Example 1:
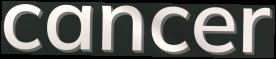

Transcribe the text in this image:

cancer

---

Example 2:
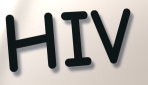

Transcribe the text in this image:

HIV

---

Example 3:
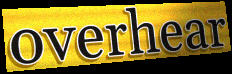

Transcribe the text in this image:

overhear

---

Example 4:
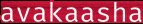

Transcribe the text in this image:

avakaasha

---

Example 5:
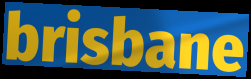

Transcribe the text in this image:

brisbane